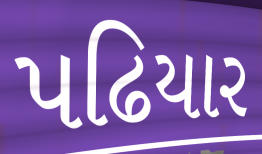
પઢિયાર